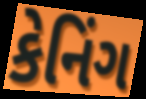
કેનિંગ